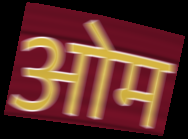
ओम